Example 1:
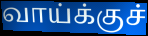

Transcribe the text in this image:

வாய்க்குச்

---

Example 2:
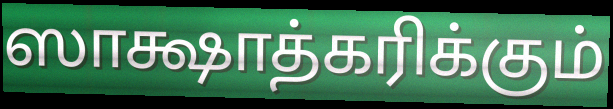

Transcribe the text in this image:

ஸாக்ஷாத்கரிக்கும்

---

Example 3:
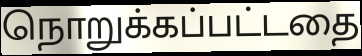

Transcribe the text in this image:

நொறுக்கப்பட்டதை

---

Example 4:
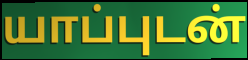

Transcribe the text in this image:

யாப்புடன்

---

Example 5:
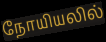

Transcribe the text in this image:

நோயியலில்